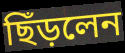
ছিঁড়লেন